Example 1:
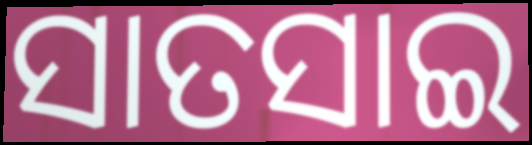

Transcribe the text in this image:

ସାତସାଇ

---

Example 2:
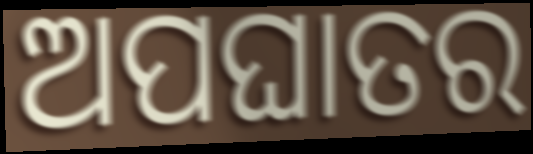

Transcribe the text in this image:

ଅପଘାତର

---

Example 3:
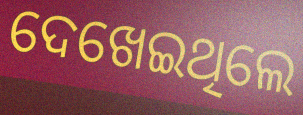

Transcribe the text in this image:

ଦେଖେଇଥିଲେ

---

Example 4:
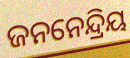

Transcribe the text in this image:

ଜନନେନ୍ଦ୍ରିୟ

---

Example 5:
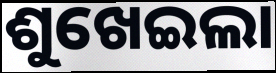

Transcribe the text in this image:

ଶୁଖେଇଲା